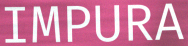
IMPURA